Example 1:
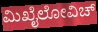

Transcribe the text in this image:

ಮಿಖೈಲೋವಿಚ್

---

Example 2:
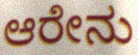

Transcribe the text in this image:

ಆರೇನು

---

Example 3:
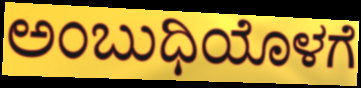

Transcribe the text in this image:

ಅಂಬುಧಿಯೊಳಗೆ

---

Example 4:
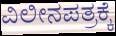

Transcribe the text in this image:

ವಿಲೀನಪತ್ರಕ್ಕೆ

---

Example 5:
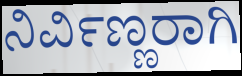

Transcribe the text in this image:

ನಿರ್ವಿಣ್ಣರಾಗಿ